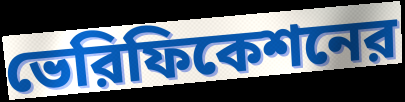
ভেরিফিকেশনের